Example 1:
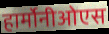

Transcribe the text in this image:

हार्मोनीओएस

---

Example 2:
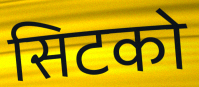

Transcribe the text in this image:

सिटको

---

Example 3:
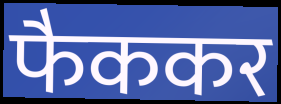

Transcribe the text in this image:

फैककर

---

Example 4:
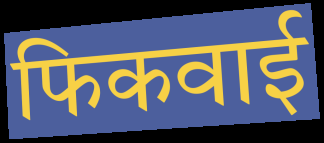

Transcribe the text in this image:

फिकवाई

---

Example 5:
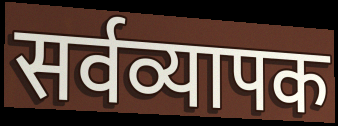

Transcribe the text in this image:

सर्वव्यापक